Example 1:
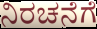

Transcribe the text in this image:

ನಿರಚನೆಗೆ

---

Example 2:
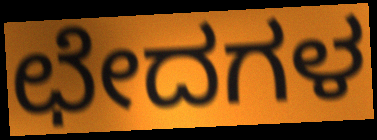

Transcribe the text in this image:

ಛೇದಗಳ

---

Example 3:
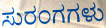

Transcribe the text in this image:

ಸುರಂಗಗಳು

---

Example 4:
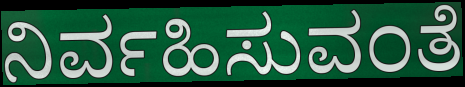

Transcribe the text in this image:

ನಿರ್ವಹಿಸುವಂತೆ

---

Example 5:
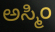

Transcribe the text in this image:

ಅಸ್ಮಿಂ